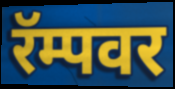
रॅम्पवर